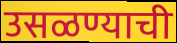
उसळण्याची